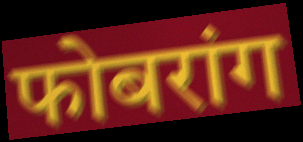
फोबरांग